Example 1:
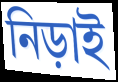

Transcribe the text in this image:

নিড়াই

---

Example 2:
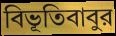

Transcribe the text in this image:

বিভূতিবাবুর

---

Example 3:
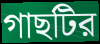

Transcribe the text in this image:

গাছটির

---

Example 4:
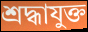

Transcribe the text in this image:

শ্রদ্ধাযুক্ত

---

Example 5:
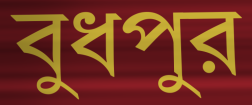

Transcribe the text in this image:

বুধপুর